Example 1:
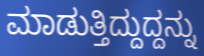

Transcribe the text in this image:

ಮಾಡುತ್ತಿದ್ದುದ್ದನ್ನು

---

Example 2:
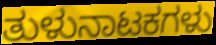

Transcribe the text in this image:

ತುಳುನಾಟಕಗಳು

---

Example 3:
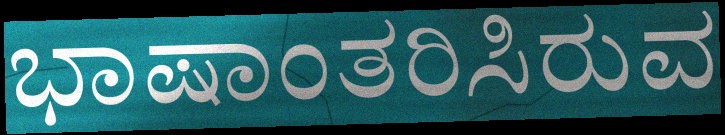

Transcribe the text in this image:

ಭಾಷಾಂತರಿಸಿರುವ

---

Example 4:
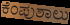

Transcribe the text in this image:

ಕೆಂಪುಶಾಲು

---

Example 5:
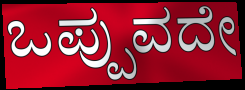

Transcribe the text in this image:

ಒಪ್ಪುವದೇ